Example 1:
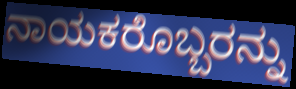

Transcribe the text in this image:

ನಾಯಕರೊಬ್ಬರನ್ನು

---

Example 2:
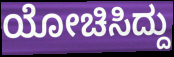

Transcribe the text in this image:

ಯೋಚಿಸಿದ್ದು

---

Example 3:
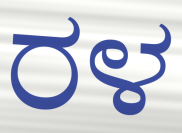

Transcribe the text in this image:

ರಳ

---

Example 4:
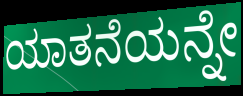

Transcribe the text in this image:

ಯಾತನೆಯನ್ನೇ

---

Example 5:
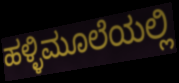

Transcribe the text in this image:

ಹಳ್ಳಿಮೂಲೆಯಲ್ಲಿ